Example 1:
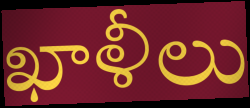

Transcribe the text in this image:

ఖాళీలు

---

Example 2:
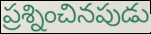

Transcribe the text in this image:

ప్రశ్నించినపుడు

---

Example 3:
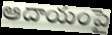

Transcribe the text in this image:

ఆదాయంపై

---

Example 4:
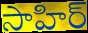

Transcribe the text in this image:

సాహిర్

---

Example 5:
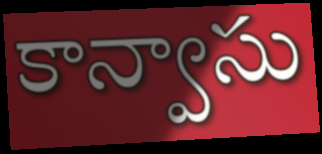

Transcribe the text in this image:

కాన్వాసు